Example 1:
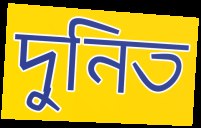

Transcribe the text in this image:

দুনিত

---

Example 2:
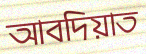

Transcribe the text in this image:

আবদিয়াত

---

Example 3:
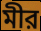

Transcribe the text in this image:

মীর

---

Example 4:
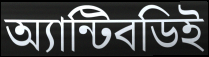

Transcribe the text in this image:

অ্যান্টিবডিই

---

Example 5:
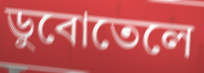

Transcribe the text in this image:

ডুবোতেলে